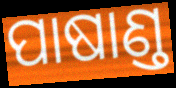
ପାଷାଣ୍ଡ